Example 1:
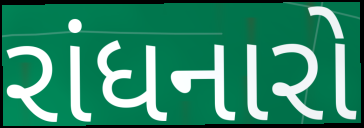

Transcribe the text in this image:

રાંધનારો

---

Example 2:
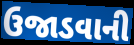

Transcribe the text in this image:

ઉજાડવાની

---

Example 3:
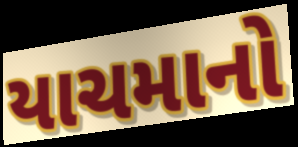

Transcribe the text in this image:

યાચમાનો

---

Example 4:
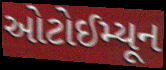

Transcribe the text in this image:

ઓટોઈમ્યૂન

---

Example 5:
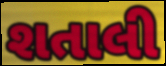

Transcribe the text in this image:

શતાલી